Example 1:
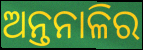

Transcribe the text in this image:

ଅନ୍ତନାଳିର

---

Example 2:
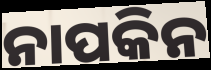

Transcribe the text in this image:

ନାପକିନ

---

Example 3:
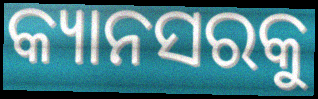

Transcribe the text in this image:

କ୍ୟାନସରକୁ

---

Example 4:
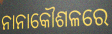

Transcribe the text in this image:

ନାନାକୌଶଳରେ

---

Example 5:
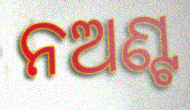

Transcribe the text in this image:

ନଅଣ୍ଟ